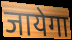
जायेगा